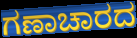
ಗಣಾಚಾರದ